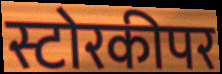
स्टोरकीपर